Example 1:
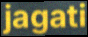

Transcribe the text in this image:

jagati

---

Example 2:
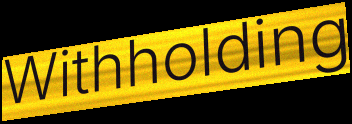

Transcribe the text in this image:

Withholding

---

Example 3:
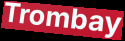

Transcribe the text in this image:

Trombay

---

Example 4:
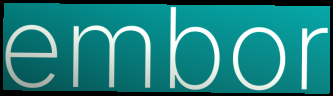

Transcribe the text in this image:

embor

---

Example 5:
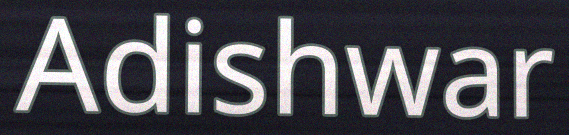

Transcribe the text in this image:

Adishwar